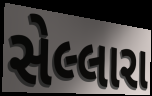
સેલ્લારા